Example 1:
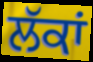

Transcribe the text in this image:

ਲੱਕਾਂ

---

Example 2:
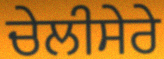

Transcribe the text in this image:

ਚੇਲੀਸੇਰੇ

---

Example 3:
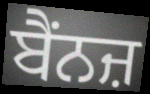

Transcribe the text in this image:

ਬੈਂਨਜ਼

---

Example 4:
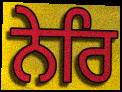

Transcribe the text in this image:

ਨੇਰਿ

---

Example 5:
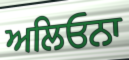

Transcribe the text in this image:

ਅਲਿਓਨਾ